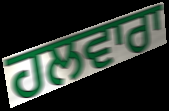
ਹਲਵਾਰਾ